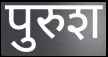
पुरुश